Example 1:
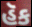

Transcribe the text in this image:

હૅક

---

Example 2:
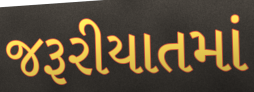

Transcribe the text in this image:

જરૂરીયાતમાં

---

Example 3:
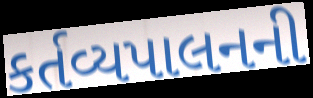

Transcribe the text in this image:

કર્તવ્યપાલનની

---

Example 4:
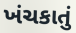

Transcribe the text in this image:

ખંચકાતું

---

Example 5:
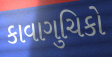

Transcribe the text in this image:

કાવાગુચિકો